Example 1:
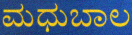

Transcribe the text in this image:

ಮಧುಬಾಲ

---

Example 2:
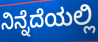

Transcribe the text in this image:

ನಿನ್ನೆದೆಯಲ್ಲಿ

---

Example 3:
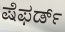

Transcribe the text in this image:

ಷೆಫರ್ಡ್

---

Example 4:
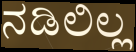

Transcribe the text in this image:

ನಡಿಲಿಲ್ಲ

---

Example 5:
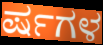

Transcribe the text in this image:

ರ್ಷಗಳ